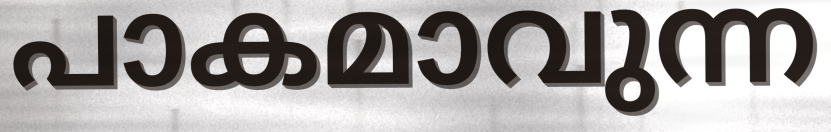
പാകമാവുന്ന